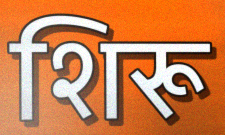
शिरू